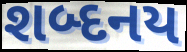
શબ્દનય